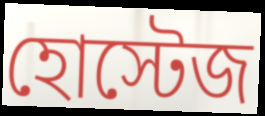
হোস্টেজ